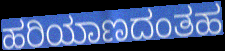
ಹರಿಯಾಣದಂತಹ